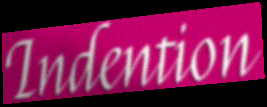
Indention